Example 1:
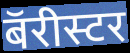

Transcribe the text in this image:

बॅरीस्टर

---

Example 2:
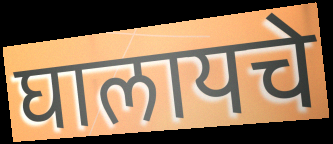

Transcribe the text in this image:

घालायचे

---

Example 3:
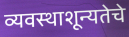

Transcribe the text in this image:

व्यवस्थाशून्यतेचे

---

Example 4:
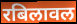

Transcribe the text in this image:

रबिलावल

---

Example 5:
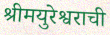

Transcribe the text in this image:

श्रीमयुरेश्वराची